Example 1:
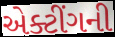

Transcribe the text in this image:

એક્ટીંગની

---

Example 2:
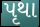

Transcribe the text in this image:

પૃથા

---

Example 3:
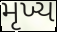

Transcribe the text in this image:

મૃખ્ય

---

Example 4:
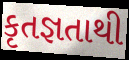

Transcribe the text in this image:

કૃતજ્ઞતાથી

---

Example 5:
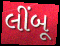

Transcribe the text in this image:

લીંબૂ